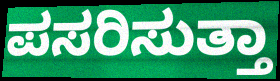
ಪಸರಿಸುತ್ತಾ